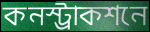
কনস্ট্রাকশনে